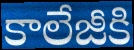
కాలేజీకి